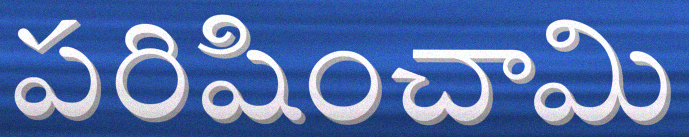
పరిషించామి